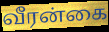
வீரன்கை